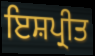
ਇਸ਼ਪ੍ਰੀਤ